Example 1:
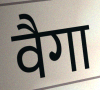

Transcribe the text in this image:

वैगा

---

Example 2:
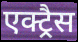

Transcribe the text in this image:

एक्ट्रैस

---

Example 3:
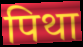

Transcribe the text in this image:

पिथा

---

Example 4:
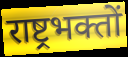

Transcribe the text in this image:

राष्ट्रभक्तों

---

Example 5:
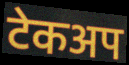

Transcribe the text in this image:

टेकअप